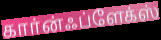
கார்ன்ஃப்ளேக்ஸ்